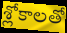
శ్లోకాలతో